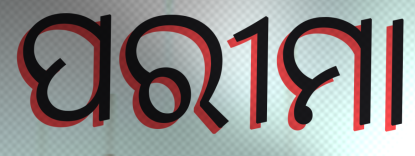
ପରୀମା